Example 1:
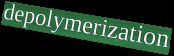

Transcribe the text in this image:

depolymerization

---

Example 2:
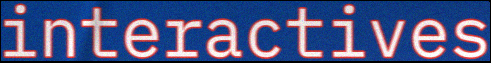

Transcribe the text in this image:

interactives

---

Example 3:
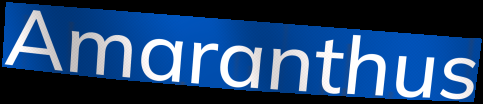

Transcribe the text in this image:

Amaranthus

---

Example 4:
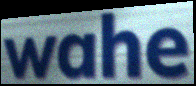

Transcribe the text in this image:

wahe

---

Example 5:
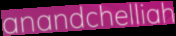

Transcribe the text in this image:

anandchelliah